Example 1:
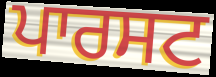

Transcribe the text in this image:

ਪਾਰਸਟ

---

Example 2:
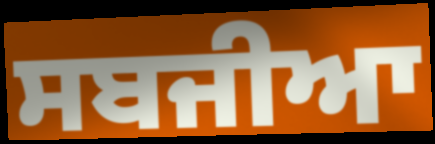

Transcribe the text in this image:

ਸਬਜੀਆ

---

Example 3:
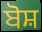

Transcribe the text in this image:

ਬੋਸ਼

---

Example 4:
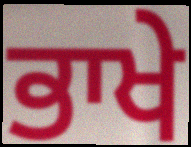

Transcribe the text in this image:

ਭਾਖੇ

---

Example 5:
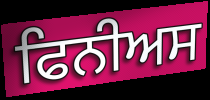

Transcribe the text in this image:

ਫਿਨੀਅਸ